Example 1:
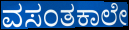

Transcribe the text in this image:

ವಸಂತಕಾಲೇ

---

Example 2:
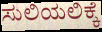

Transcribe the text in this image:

ಸುಲಿಯಲಿಕ್ಕೆ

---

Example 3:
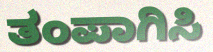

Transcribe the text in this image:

ತಂಪಾಗಿಸಿ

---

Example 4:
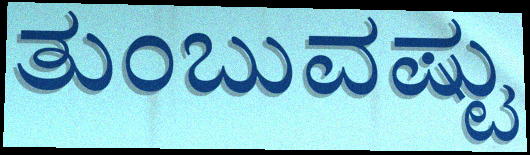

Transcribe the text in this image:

ತುಂಬುವಷ್ಟು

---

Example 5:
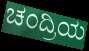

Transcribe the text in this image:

ಚಂದ್ರಿಯ